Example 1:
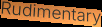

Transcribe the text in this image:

Rudimentary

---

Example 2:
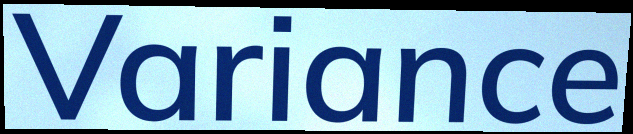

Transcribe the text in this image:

Variance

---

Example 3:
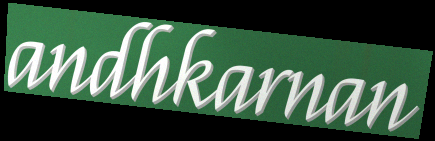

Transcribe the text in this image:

andhkarnan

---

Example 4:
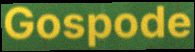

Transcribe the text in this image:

Gospode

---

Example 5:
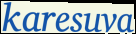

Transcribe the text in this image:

karesuva